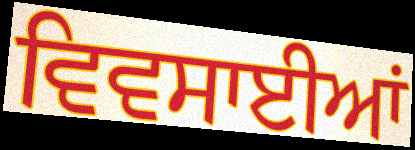
ਵਿਵਸਾਈਆਂ